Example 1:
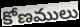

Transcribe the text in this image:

కోణములు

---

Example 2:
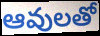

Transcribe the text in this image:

ఆవులతో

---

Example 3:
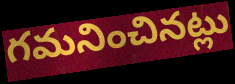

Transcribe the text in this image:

గమనించినట్లు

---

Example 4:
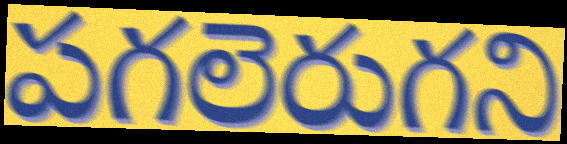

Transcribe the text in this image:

పగలెరుగని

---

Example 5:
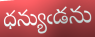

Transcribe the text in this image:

ధన్యుఁడను